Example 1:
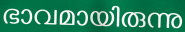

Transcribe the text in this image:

ഭാവമായിരുന്നു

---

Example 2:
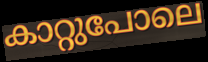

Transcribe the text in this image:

കാറ്റുപോലെ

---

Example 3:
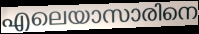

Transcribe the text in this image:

എലെയാസാരിനെ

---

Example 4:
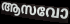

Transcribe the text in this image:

ആസവോ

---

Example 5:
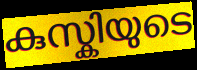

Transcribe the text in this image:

കുസ്കിയുടെ